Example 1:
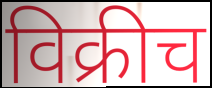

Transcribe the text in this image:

विक्रीच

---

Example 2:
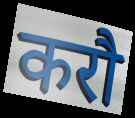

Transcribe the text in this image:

करौ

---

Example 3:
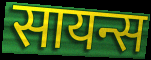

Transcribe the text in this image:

सायन्स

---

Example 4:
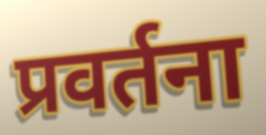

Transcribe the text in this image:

प्रवर्तना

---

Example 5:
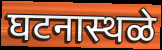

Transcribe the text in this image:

घटनास्थळे